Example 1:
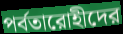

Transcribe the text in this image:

পর্বতারোহীদের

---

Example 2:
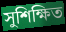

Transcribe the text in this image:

সুশিক্ষিত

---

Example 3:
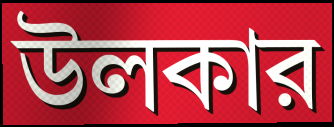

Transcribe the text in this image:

উলকার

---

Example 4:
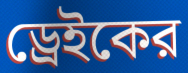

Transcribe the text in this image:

ড্রেইকের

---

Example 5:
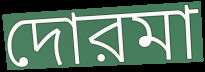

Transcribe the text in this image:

দোরমা